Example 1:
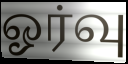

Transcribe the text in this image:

ஓர்வு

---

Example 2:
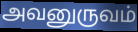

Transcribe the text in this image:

அவனுருவம்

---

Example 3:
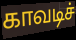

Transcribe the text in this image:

காவடிச்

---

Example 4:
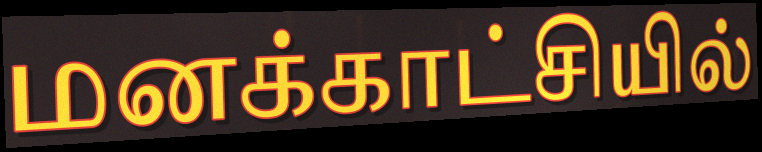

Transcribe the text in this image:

மனக்காட்சியில்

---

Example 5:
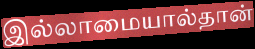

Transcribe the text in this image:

இல்லாமையால்தான்